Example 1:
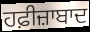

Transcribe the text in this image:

ਹਫ਼ੀਜ਼ਾਬਾਦ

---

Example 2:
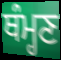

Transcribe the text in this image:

ਥੰਮ੍ਹਣ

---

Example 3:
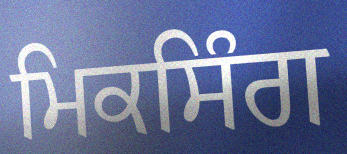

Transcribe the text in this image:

ਮਿਕਸਿੰਗ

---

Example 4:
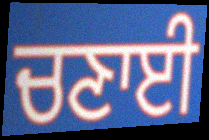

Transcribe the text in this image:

ਚਣਾਈ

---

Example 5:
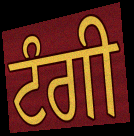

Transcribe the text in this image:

ਟੰਗੀ